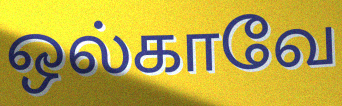
ஒல்காவே